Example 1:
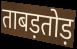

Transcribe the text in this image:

ताबड़तोड़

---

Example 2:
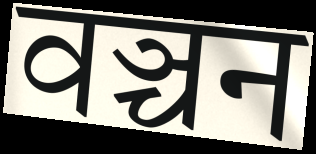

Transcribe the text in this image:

वञ्चन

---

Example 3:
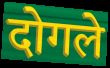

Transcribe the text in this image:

दोगले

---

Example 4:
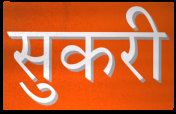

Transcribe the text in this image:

सुकरी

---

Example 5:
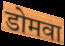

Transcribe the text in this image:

डोमवा